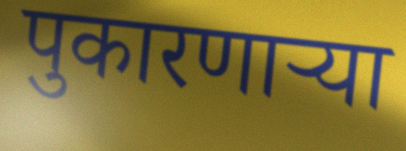
पुकारणार्‍या